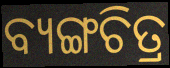
ବ୍ୟଙ୍ଗଚିତ୍ର